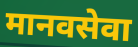
मानवसेवा